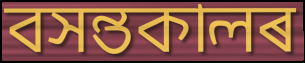
বসন্তকালৰ